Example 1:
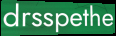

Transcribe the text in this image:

drsspethe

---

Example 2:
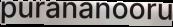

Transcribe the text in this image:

purananooru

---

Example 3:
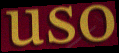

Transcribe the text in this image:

uso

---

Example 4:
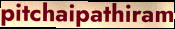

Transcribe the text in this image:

pitchaipathiram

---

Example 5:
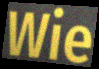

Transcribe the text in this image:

Wie